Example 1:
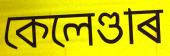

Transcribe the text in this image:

কেলেণ্ডাৰ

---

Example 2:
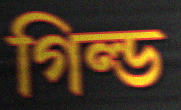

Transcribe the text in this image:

গিল্ড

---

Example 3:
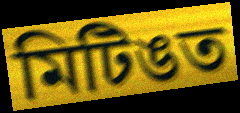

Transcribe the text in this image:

মিটিঙত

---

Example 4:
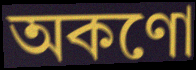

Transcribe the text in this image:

অকণো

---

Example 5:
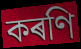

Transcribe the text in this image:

কৰণি